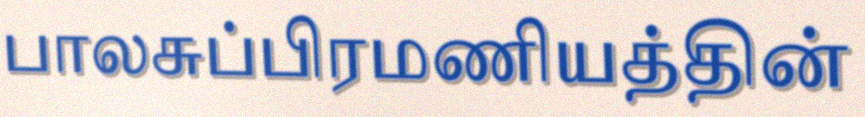
பாலசுப்பிரமணியத்தின்